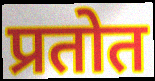
प्रतोत